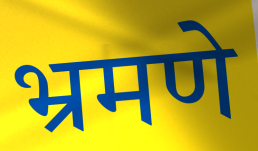
भ्रमणे